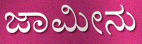
ಜಾಮೀನು